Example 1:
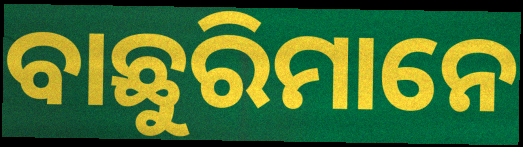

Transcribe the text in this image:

ବାଛୁରିମାନେ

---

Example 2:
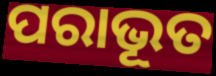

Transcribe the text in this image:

ପରାଭୂତ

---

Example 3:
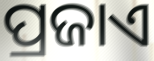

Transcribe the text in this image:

ପ୍ରଜାଏ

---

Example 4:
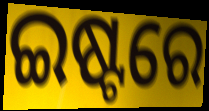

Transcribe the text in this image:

ଇଷ୍ଟରେ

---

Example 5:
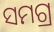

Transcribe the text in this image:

ସମଗ୍ର